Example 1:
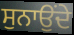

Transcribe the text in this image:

ਸੁਨਾਉਂਦੇ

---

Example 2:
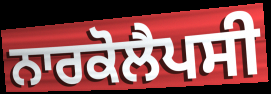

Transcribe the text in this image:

ਨਾਰਕੋਲੈਪਸੀ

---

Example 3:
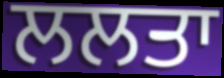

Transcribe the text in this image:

ਲਲਤਾ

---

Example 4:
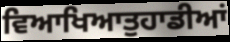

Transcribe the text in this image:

ਵਿਆਖਿਆਤੁਹਾਡੀਆਂ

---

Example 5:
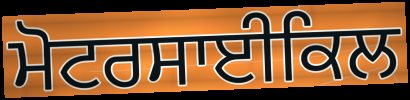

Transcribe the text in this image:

ਮੋਟਰਸਾਈਕਿਲ